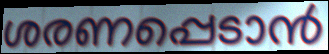
ശരണപ്പെടാൻ